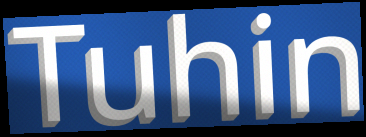
Tuhin